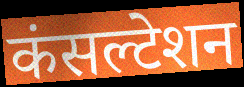
कंसल्टेशन